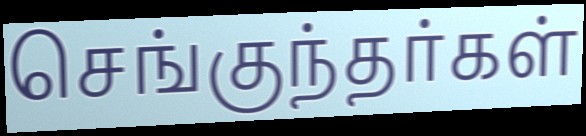
செங்குந்தர்கள்